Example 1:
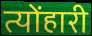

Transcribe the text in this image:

त्योंहारी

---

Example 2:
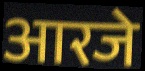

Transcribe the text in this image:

आरजे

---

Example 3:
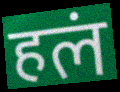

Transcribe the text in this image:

हलं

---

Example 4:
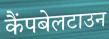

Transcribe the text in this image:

कैंपबेलटाउन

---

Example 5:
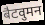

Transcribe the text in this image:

बैटवुमन